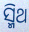
ସ୍ମିଥ